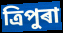
ত্ৰিপুৰা